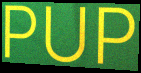
PUP